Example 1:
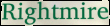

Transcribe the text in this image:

Rightmire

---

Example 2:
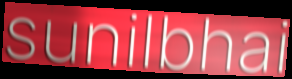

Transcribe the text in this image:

sunilbhai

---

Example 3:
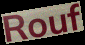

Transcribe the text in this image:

Rouf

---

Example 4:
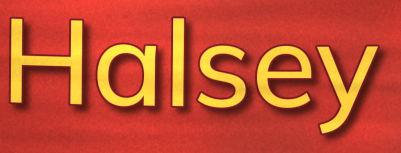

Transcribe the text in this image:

Halsey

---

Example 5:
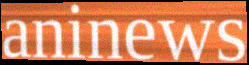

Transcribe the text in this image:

aninews